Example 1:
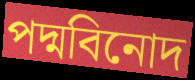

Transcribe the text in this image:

পদ্মবিনোদ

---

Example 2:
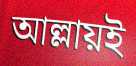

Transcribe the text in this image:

আল্লায়ই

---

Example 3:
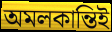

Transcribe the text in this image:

অমলকান্তিই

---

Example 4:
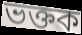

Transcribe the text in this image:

ভক্তক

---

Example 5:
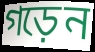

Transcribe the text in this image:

গড়েন